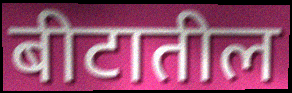
बीटातील